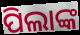
ପିଲାଙ୍କ